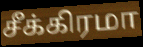
சீக்கிரமா